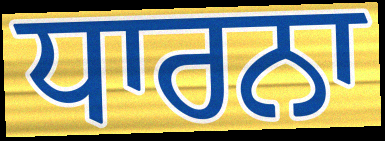
ਧਾਰਨਾ